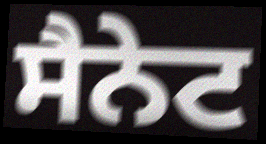
ਸੈਨੇਟ